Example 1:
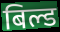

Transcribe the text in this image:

बिल्ड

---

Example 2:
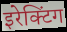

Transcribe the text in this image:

इरेक्टिंग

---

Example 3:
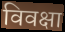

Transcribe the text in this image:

विवक्षा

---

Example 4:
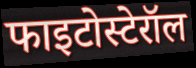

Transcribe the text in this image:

फाइटोस्टेरॉल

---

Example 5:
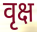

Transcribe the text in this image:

वृक्ष